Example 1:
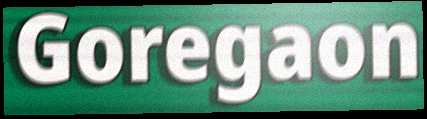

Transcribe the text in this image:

Goregaon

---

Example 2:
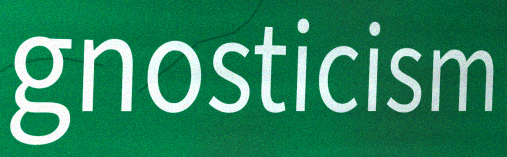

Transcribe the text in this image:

gnosticism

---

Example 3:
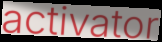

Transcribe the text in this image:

activator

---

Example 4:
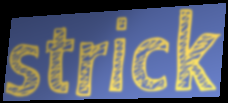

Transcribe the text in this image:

strick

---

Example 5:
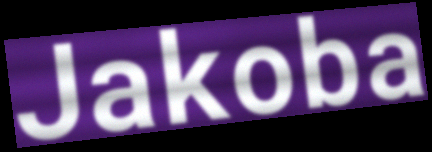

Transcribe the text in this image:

Jakoba